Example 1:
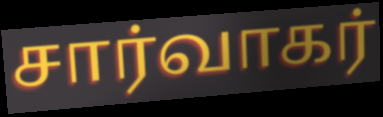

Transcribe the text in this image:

சார்வாகர்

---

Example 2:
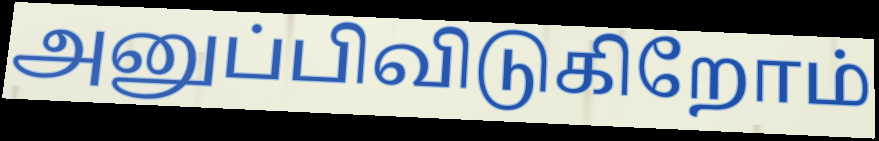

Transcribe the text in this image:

அனுப்பிவிடுகிறோம்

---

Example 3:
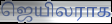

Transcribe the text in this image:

ஜெயிலராக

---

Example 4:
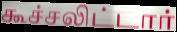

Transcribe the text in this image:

கூச்சலிட்டார்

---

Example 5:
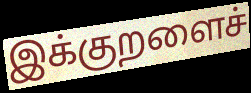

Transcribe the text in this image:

இக்குறளைச்